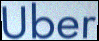
Uber